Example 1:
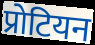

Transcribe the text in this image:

प्रोटियन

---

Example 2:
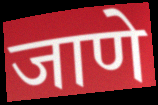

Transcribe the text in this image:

जाणे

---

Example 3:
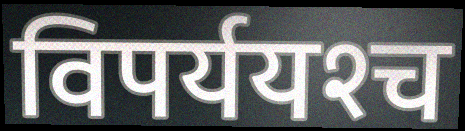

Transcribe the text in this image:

विपर्ययश्च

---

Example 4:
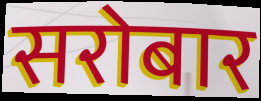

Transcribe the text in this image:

सरोबार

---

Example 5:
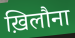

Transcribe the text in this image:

ख़िलौना